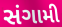
સંગામી